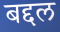
बद्दल